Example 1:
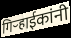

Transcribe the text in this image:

गिऱ्हाईकांनी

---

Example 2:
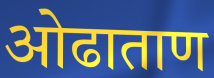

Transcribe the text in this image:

ओढाताण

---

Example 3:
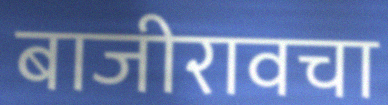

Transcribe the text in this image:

बाजीरावचा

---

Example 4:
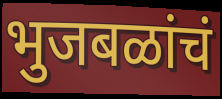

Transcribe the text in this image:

भुजबळांचं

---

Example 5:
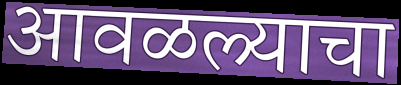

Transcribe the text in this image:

आवळल्याचा